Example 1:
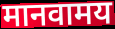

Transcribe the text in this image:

मानवामय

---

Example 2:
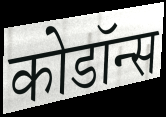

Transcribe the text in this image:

कोडॉन्स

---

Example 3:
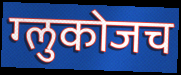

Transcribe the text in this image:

ग्लुकोजच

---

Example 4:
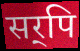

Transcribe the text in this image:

सर्पि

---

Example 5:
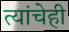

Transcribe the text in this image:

त्यांचेही